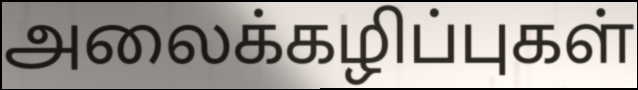
அலைக்கழிப்புகள்